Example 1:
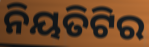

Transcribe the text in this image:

ନିୟତିଟିର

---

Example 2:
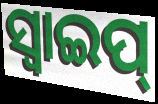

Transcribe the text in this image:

ସ୍ୱାଇପ୍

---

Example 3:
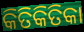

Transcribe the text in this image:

କିତିକିତିକା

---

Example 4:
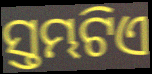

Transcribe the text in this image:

ସ୍ତମ୍ଭଟିଏ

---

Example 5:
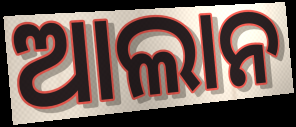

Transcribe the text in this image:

ଆଲାନ